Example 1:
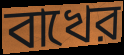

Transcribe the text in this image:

বাখের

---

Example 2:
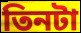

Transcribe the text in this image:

তিনটা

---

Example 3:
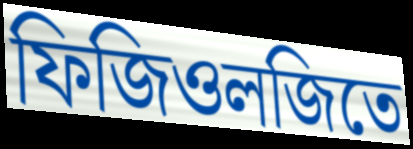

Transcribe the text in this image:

ফিজিওলজিতে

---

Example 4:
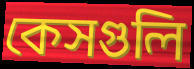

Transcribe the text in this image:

কেসগুলি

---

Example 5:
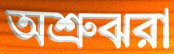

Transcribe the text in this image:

অশ্রুঝরা